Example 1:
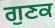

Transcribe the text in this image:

ਗੁਣਕ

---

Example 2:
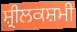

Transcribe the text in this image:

ਸ਼੍ਰੀਲਕਸ਼ਮੀ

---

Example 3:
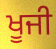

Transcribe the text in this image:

ਖੂਜੀ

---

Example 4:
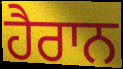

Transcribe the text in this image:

ਹੈਰਾਨ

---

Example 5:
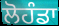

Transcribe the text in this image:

ਲੋਹੰਡਾ